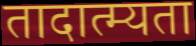
तादात्म्यता